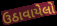
ઉઠાવાયેલો